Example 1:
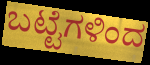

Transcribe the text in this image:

ಬಟ್ಟೆಗಳಿಂದ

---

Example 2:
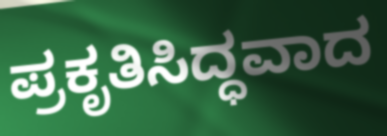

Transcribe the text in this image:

ಪ್ರಕೃತಿಸಿದ್ಧವಾದ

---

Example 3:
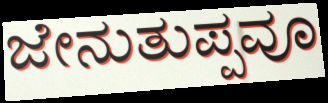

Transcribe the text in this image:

ಜೇನುತುಪ್ಪವೂ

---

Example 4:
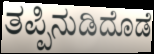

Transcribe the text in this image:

ತಪ್ಪಿನುಡಿದೊಡೆ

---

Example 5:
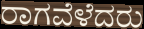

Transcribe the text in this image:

ರಾಗವೆಳೆದರು